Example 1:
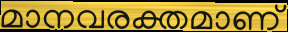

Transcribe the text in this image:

മാനവരക്തമാണ്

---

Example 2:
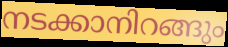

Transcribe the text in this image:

നടക്കാനിറങ്ങും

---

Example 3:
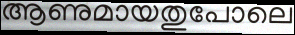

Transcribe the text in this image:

ആണുമായതുപോലെ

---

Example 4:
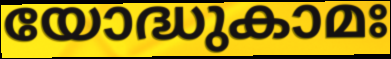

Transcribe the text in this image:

യോദ്ധുകാമഃ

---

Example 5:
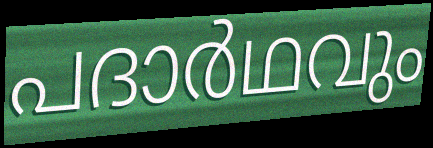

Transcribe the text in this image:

പദാർഥവും